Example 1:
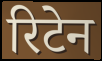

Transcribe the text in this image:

रिटेन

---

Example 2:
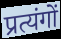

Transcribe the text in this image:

प्रत्यंगों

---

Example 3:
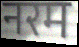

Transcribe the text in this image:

नरम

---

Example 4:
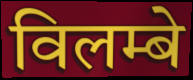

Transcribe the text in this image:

विलम्बे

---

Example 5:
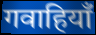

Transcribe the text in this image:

गवाहियाँ